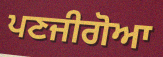
ਪਣਜੀਗੋਆ